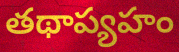
తథాప్యహం